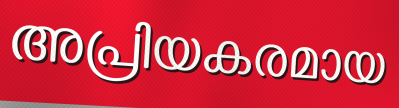
അപ്രിയകരമായ